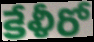
కేళీరో